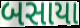
બસાયા